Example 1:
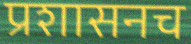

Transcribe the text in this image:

प्रशासनच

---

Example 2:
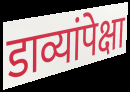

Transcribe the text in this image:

डाव्यांपेक्षा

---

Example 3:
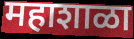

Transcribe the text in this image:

महाशाळा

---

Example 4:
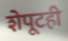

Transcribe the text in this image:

शेपूटही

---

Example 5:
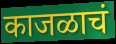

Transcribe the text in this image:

काजळाचं